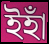
ইহাঁ